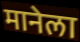
मानेला